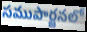
సముపార్జనలో